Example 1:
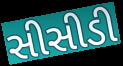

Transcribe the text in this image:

સીસીડી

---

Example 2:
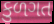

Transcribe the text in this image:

કુળગત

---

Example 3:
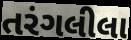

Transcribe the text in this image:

તરંગલીલા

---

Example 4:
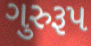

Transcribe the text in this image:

ગુરુરૂપ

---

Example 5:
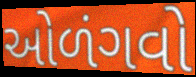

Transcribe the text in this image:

ઓળંગવો